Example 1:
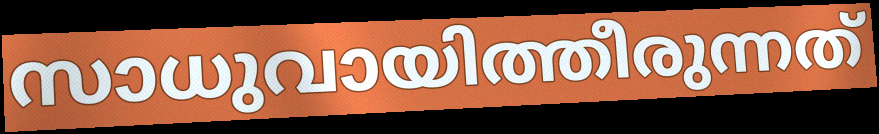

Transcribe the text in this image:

സാധുവായിത്തീരുന്നത്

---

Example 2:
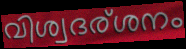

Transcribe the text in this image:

വിശ്വദര്ശനം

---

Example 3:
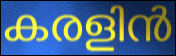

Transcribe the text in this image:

കരളിൻ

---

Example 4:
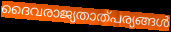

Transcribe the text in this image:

ദൈവരാജ്യതാത്പര്യങ്ങൾ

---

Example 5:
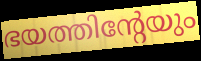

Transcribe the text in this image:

ഭയത്തിന്റേയും